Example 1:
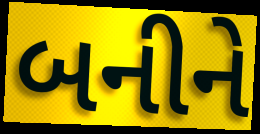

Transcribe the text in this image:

બનીને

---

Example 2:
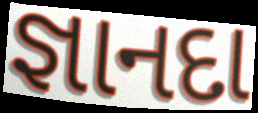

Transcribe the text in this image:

જ્ઞાનદા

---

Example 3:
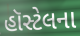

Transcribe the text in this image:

હૉસ્ટેલના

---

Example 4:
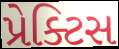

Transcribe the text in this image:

પ્રેક્ટિસ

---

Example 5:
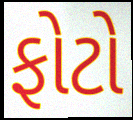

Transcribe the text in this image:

ફોટો